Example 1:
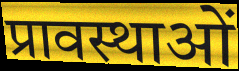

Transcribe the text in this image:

प्रावस्थाओं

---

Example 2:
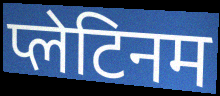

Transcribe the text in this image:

प्लेटिनम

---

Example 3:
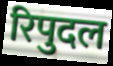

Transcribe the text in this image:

रिपुदल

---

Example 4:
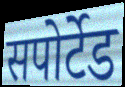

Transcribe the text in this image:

सपोर्टेड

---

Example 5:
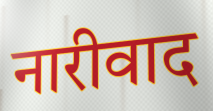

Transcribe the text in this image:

नारीवाद